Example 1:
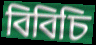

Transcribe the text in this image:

বিবিচি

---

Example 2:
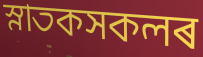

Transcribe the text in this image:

স্নাতকসকলৰ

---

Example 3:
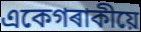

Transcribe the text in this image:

একেগৰাকীয়ে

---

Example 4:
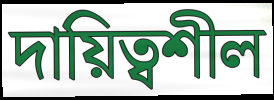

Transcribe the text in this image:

দায়িত্বশীল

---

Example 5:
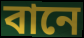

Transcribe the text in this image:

বানে